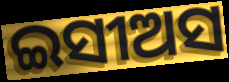
ଇସୀଅସ